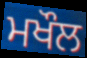
ਮਖੌਲ